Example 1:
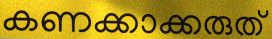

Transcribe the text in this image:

കണക്കാക്കരുത്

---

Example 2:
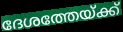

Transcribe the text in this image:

ദേശത്തേയ്ക്ക്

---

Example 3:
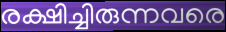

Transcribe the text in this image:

രക്ഷിച്ചിരുന്നവരെ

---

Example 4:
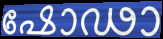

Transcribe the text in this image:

ഷോഢാ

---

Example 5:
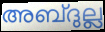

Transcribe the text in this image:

അബ്ദുല്ല